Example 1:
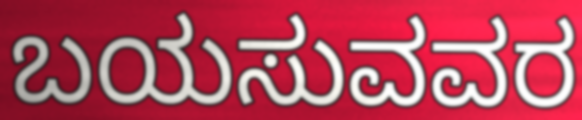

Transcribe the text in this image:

ಬಯಸುವವರ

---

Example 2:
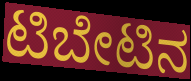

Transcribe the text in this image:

ಟಿಬೇಟಿನ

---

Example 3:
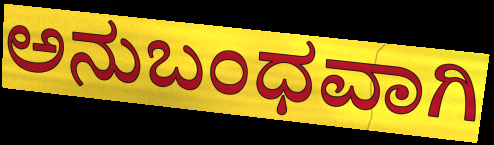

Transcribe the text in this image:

ಅನುಬಂಧವಾಗಿ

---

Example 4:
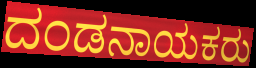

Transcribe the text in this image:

ದಂಡನಾಯಕರು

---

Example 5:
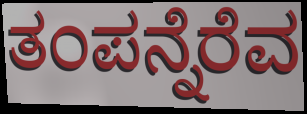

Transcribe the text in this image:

ತಂಪನ್ನೆರೆವ